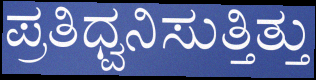
ಪ್ರತಿಧ್ವನಿಸುತ್ತಿತ್ತು